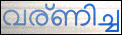
വര്ണിച്ച